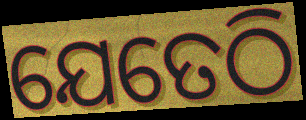
ଯେତେଠି